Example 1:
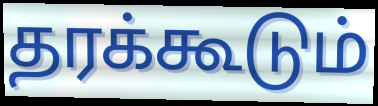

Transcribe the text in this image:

தரக்கூடும்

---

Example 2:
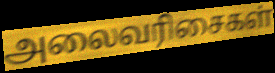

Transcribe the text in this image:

அலைவரிசைகள்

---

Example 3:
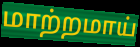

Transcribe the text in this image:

மாற்றமாய்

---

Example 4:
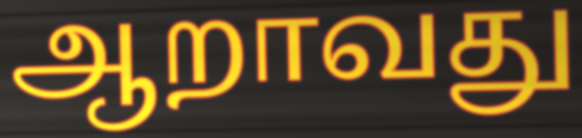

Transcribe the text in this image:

ஆறாவது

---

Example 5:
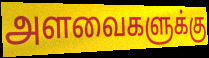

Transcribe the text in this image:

அளவைகளுக்கு